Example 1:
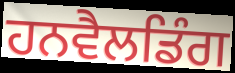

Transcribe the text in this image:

ਹਨਵੈਲਡਿੰਗ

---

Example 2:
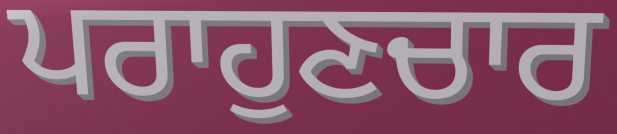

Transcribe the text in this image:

ਪਰਾਹੁਣਚਾਰ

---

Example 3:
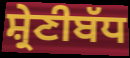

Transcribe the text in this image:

ਸ਼੍ਰੇਣੀਬੱਧ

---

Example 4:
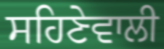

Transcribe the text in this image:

ਸਹਿਣੇਵਾਲੀ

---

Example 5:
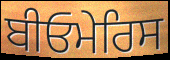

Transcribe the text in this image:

ਬੀਓਮੇਰਿਸ